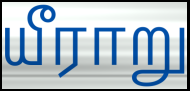
யீராறு